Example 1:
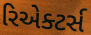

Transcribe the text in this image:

રિએક્ટર્સ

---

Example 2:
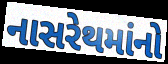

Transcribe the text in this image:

નાસરેથમાંનો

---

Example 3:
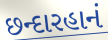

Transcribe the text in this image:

છન્દારહાનં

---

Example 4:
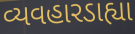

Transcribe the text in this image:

વ્યવહારડાહ્યા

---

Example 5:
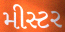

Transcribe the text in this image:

મીસ્ટર